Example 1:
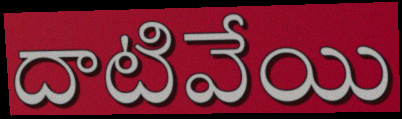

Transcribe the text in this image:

దాటివేయి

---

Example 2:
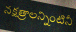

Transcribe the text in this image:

నక్షత్రాలన్నింటినీ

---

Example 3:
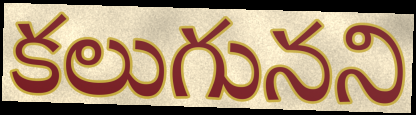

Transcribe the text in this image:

కలుగునని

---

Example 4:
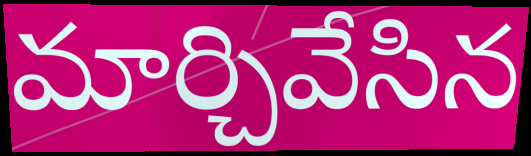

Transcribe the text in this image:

మార్చివేసిన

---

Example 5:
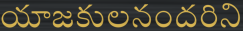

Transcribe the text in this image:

యాజకులనందరిని